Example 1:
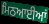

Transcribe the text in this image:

ਮਿਠਆਈਆਂ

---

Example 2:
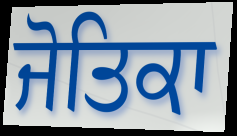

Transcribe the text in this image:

ਜੋਤਿਕਾ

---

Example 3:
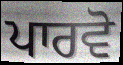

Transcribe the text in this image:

ਪਾਰਵੋ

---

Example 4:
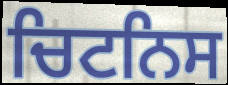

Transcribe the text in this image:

ਚਿਟਨਿਸ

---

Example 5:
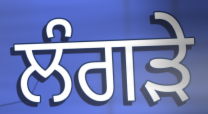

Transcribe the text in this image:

ਲੰਗੜੇ